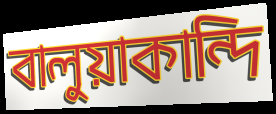
বালুয়াকান্দি